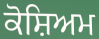
ਕੋਸ਼ਿਅਮ